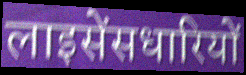
लाइसेंसधारियों